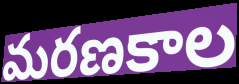
మరణకాల